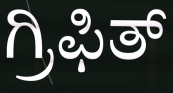
ಗ್ರಿಫಿತ್